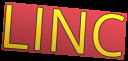
LINC